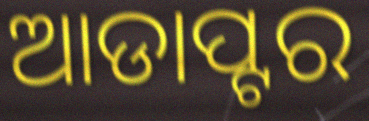
ଆଡାପ୍ଟର